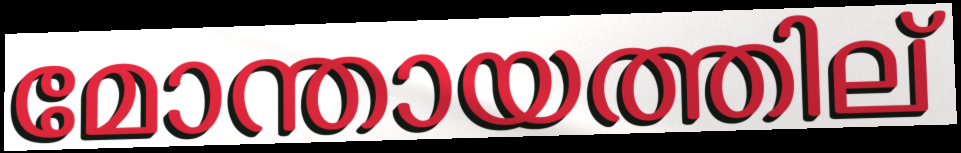
മോന്തായത്തില്